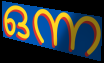
ഒന്ന